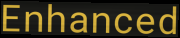
Enhanced